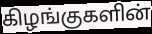
கிழங்குகளின்